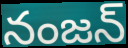
నంజన్